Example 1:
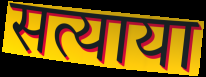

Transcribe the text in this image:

सत्याया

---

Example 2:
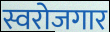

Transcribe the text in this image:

स्वरोजगार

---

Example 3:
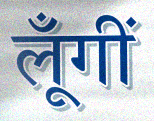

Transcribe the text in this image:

लूँगीं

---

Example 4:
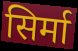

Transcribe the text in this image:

सिर्मा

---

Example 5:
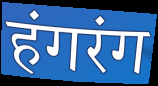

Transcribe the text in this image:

हंगरंग